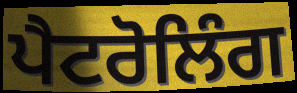
ਪੈਟਰੋਲਿੰਗ